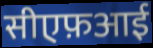
सीएफ़आई